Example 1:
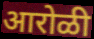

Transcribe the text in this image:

आरोळी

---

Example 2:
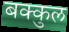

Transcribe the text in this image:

बक्कुल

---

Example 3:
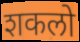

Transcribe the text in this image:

शकलो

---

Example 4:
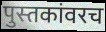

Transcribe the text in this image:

पुस्तकांवरच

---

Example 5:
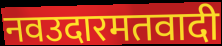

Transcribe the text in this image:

नवउदारमतवादी